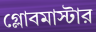
গ্লোবমাস্টার